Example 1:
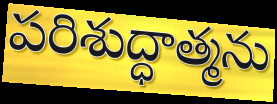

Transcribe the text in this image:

పరిశుద్ధాత్మను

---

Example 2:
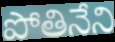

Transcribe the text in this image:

పోతినేని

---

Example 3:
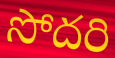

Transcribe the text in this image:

సోదరి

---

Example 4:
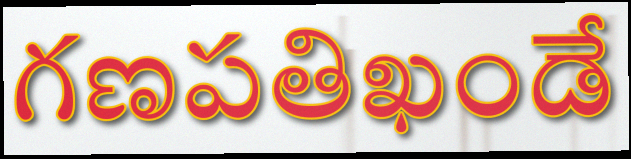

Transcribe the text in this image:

గణపతిఖండే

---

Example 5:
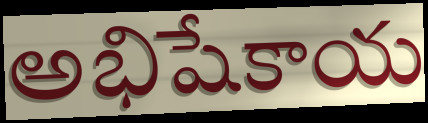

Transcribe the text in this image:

అభిషేకాయ